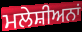
ਮਲੇਸ਼ੀਅਨਾਂ